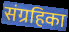
संग्रहिका